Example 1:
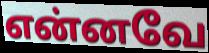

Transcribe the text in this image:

என்னவே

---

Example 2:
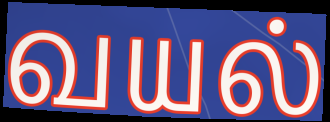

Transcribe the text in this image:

வயல்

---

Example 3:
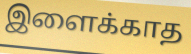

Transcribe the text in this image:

இளைக்காத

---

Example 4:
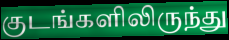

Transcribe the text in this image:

குடங்களிலிருந்து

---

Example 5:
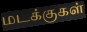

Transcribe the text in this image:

மடக்குகள்